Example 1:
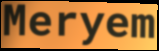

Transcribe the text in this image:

Meryem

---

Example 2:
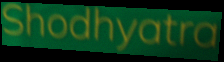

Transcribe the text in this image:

Shodhyatra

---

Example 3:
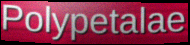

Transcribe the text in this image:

Polypetalae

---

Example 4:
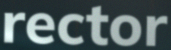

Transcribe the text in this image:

rector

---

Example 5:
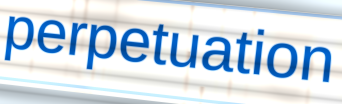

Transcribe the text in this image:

perpetuation